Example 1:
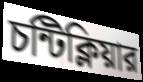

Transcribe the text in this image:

চন্টিক্লিয়ার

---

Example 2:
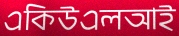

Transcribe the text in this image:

একিউএলআই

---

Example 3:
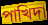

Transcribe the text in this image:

পাখিদা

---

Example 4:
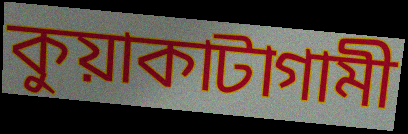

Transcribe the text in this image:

কুয়াকাটাগামী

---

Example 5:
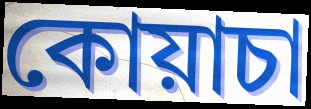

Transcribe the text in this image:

কোয়াচা